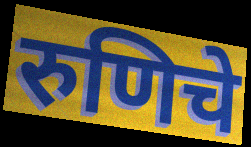
रुणिचे